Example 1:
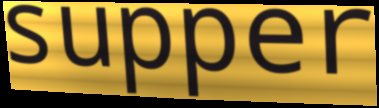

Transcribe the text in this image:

supper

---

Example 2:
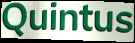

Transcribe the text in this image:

Quintus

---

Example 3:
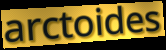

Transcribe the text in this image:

arctoides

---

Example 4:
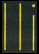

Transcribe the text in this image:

Ili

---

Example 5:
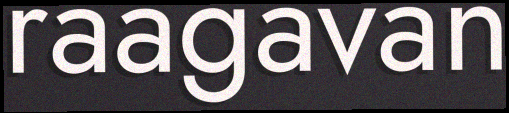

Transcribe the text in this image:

raagavan